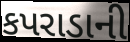
કપરાડાની